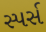
સ્પર્સ